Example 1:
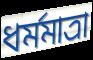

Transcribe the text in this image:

ধর্মমাত্রা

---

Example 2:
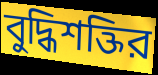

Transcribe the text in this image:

বুদ্ধিশক্তির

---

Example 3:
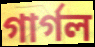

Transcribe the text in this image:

গার্গল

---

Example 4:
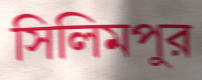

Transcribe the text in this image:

সিলিমপুর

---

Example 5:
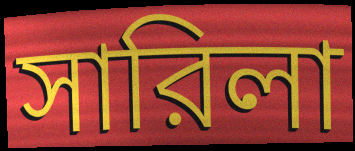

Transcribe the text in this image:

সারিলা